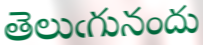
తెలుఁగునందు